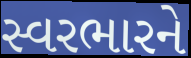
સ્વરભારને